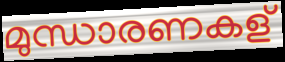
മുന്ധാരണകള്